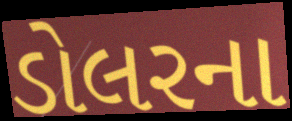
ડોલરના